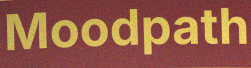
Moodpath